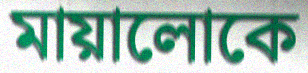
মায়ালোকে